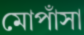
মোপাঁসা